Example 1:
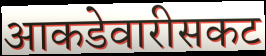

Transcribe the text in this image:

आकडेवारीसकट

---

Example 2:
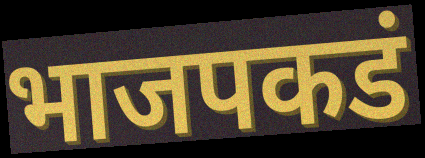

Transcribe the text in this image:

भाजपकडं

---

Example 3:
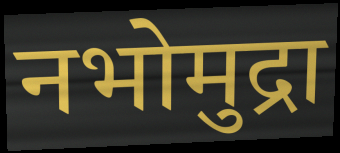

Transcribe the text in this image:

नभोमुद्रा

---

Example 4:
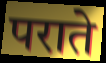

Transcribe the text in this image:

पराते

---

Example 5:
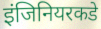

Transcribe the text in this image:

इंजिनियरकडे